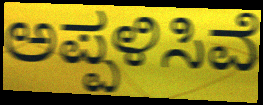
ಅಪ್ಪಳಿಸಿವೆ